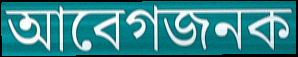
আবেগজনক